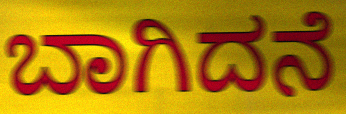
ಬಾಗಿದನೆ